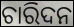
ଚାରିଦନ